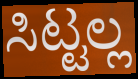
ಸಿಟ್ಟಲ್ಲ